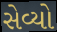
સેવ્યો